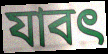
যাবৎ